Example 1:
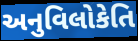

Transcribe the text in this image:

અનુવિલોકેતિ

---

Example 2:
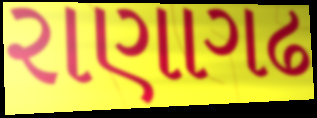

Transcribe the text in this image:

રાણાગઢ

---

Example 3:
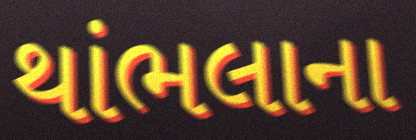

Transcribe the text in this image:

થાંભલાના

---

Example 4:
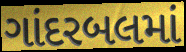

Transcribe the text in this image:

ગાંદરબલમાં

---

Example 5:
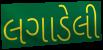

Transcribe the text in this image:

લગાડેલી